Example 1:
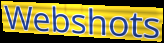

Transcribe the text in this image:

Webshots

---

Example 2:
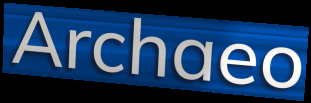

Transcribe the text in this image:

Archaeo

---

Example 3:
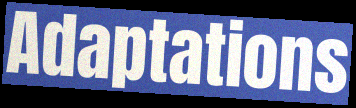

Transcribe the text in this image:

Adaptations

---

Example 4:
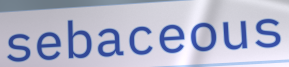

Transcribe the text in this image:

sebaceous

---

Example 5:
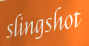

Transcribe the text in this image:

slingshot